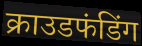
क्राउडफंडिंग